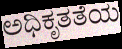
ಅಧಿಕೃತತೆಯ